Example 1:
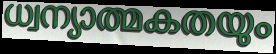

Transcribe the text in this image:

ധ്വന്യാത്മകതയും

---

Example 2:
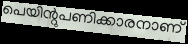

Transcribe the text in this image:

പെയിന്റുപണിക്കാരനാണ്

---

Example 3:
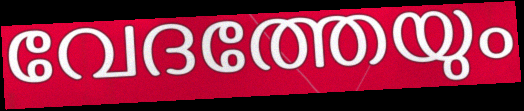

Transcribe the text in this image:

വേദത്തേയും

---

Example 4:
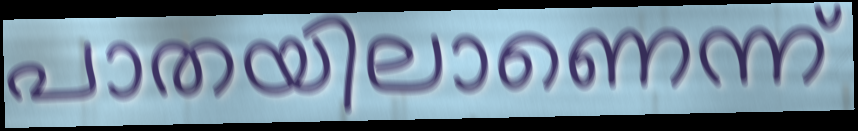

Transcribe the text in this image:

പാതയിലാണെന്ന്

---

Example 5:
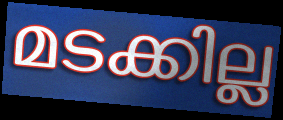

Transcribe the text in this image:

മടക്കില്ല